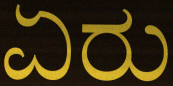
ಏರು